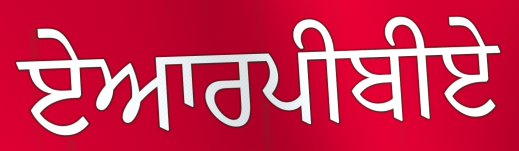
ਏਆਰਪੀਬੀਏ